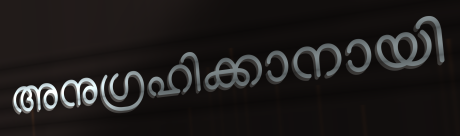
അനുഗ്രഹിക്കാനായി